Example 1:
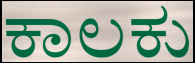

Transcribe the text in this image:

ಕಾಲಕು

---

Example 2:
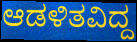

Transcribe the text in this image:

ಆಡಳಿತವಿದ್ದ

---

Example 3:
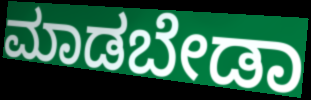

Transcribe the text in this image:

ಮಾಡಬೇಡಾ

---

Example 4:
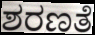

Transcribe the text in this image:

ಶರಣತೆ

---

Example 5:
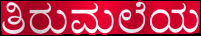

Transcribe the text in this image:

ತಿರುಮಲೆಯ